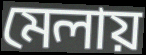
মেলায়